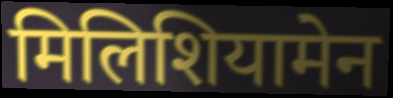
मिलिशियामेन